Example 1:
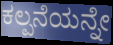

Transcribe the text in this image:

ಕಲ್ಪನೆಯನ್ನೇ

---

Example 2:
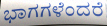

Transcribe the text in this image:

ಭಾಗಗಳೆಂದರೆ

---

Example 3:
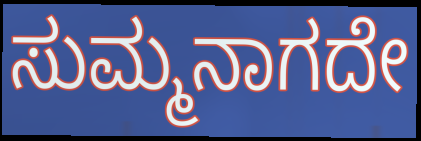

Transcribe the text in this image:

ಸುಮ್ಮನಾಗದೇ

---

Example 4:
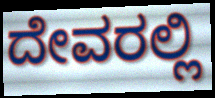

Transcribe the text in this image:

ದೇವರಲ್ಲಿ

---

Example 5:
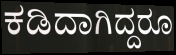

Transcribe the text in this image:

ಕಡಿದಾಗಿದ್ದರೂ